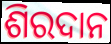
ଶିରଦାନ